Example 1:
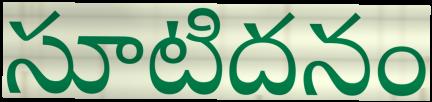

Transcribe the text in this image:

సూటిదనం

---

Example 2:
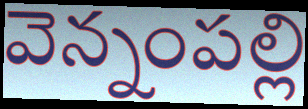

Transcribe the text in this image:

వెన్నంపల్లి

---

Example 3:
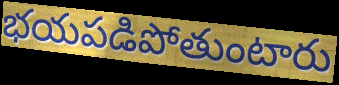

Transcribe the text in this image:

భయపడిపోతుంటారు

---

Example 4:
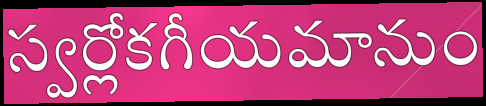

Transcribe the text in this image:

స్వర్లోకగీయమానుం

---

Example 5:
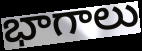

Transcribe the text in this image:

భాగాలు